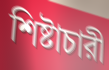
শিষ্টাচারী